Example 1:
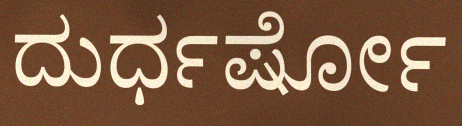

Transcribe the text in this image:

ದುರ್ಧರ್ಷೋ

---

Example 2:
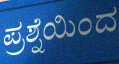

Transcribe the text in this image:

ಪ್ರಶ್ನೆಯಿಂದ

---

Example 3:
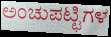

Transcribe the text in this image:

ಅಂಚುಪಟ್ಟಿಗಳ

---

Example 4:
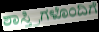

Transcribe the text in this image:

ಶಾಸ್ತ್ರಿಗಳೊಂದಿಗೆ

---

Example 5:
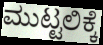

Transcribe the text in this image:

ಮುಟ್ಟಲಿಕ್ಕೆ